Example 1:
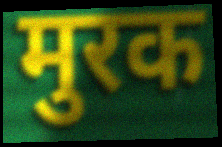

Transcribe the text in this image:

मुरक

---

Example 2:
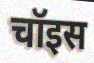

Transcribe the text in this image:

चॉइस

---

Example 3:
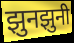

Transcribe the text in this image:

झुनझुनी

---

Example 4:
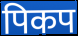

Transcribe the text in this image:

पिकप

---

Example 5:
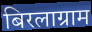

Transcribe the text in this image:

बिरलाग्राम